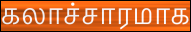
கலாச்சாரமாக